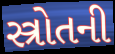
સ્ત્રોતની